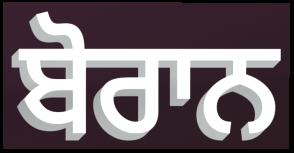
ਬੋਰਾਨ